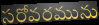
సరోవరమును